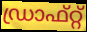
ഡ്രാഫ്റ്റ്